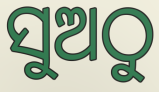
ସୁଅଠୁ